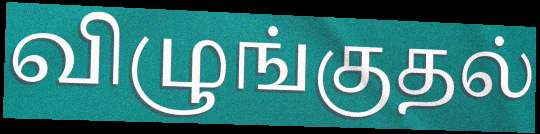
விழுங்குதல்